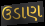
ઉડાણ